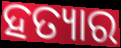
ହତ୍ୟାର